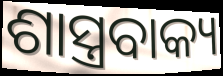
ଶାସ୍ତ୍ରବାକ୍ୟ